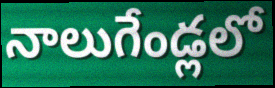
నాలుగేండ్లలో